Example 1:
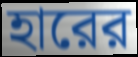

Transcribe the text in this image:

হারের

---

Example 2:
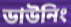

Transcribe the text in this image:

ডাউনিং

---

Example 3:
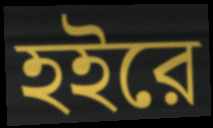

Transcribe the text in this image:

হইরে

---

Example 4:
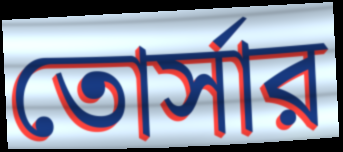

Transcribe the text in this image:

তোর্সার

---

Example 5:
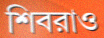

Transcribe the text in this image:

শিবরাও